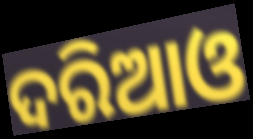
ଦରିଆଓ